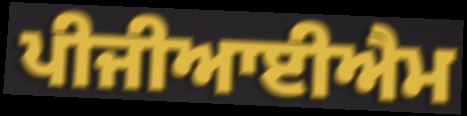
ਪੀਜੀਆਈਐਮ